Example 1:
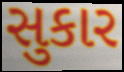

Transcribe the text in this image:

સુકાર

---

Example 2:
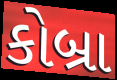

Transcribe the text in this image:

કોબ્રા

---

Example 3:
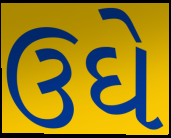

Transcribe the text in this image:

ઉઘે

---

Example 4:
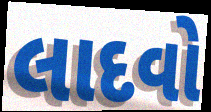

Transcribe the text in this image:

લાદવો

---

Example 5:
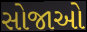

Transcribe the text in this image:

સોજાઓ